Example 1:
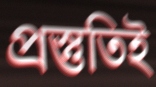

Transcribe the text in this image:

প্রস্তুতিই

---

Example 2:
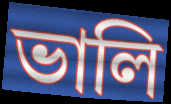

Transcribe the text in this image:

ভালি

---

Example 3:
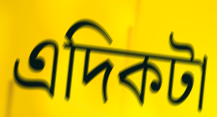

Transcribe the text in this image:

এদিকটা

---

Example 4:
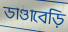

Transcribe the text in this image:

ডাণ্ডাবেড়ি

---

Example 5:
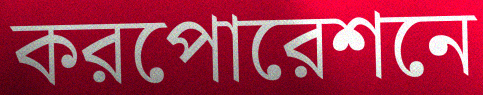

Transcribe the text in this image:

করপোরেশনে